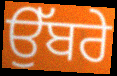
ਉੱਬਰੇ